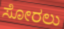
ಸೋರಲು